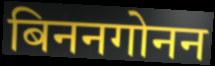
बिननगोनन